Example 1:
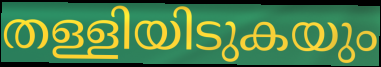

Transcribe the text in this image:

തള്ളിയിടുകയും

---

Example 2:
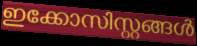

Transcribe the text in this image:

ഇക്കോസിസ്റ്റങ്ങൾ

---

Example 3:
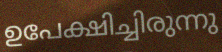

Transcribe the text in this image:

ഉപേക്ഷിച്ചിരുന്നു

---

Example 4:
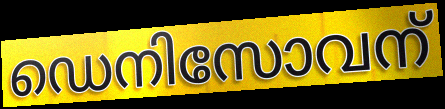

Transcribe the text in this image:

ഡെനിസോവന്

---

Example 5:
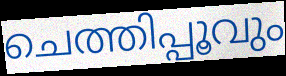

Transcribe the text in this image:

ചെത്തിപ്പൂവും